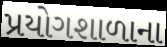
પ્રયોગશાળાના